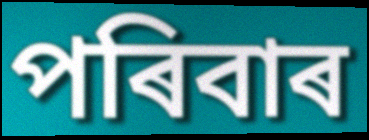
পৰিবাৰ